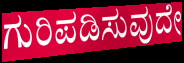
ಗುರಿಪಡಿಸುವುದೇ